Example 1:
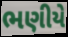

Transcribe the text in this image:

ભણીયે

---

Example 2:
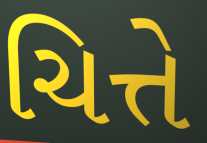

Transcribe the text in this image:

ચિત્તે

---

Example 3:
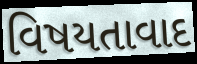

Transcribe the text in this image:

વિષયતાવાદ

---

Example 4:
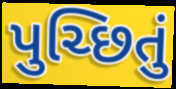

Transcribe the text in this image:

પુચ્છિતું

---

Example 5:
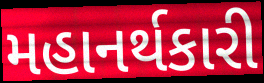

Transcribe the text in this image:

મહાનર્થકારી